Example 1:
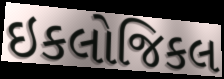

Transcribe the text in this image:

ઇકલોજિકલ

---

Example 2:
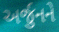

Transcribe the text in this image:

અર્જુનને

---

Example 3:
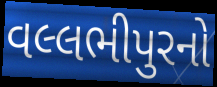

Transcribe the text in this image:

વલ્લભીપુરનો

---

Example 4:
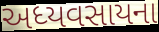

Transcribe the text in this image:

અધ્યવસાયના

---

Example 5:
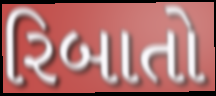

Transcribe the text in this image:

રિબાતો